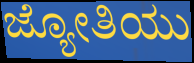
ಜ್ಯೋತಿಯು